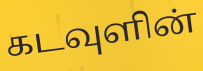
கடவுளின்